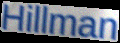
Hillman